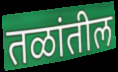
तळांतील